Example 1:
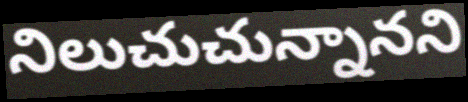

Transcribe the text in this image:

నిలుచుచున్నానని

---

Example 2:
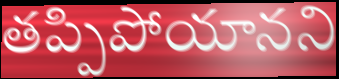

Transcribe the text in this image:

తప్పిపోయానని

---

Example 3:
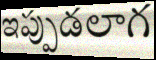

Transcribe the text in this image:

ఇప్పుడలాగ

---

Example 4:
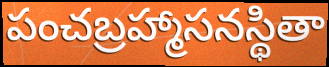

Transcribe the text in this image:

పంచబ్రహ్మాసనస్థితా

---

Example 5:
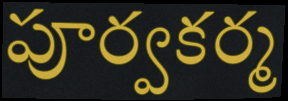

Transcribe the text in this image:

పూర్వకర్మ